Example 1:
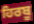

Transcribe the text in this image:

ਹਿਰਬੂ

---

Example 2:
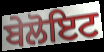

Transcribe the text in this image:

ਬੇਲੋਇਟ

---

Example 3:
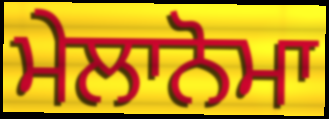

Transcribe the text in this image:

ਮੇਲਾਨੋਮਾ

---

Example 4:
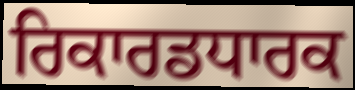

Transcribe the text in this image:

ਰਿਕਾਰਡਧਾਰਕ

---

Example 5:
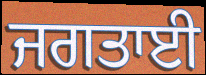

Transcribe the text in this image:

ਜਗਤਾਈ